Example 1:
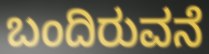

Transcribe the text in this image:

ಬಂದಿರುವನೆ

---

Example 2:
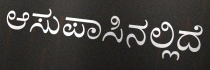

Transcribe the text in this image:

ಆಸುಪಾಸಿನಲ್ಲಿದೆ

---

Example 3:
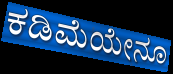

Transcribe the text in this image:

ಕಡಿಮೆಯೇನೂ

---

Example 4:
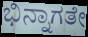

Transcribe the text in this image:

ಭಿನ್ನಾಗತೇ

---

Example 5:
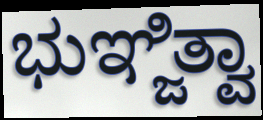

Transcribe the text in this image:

ಭುಞ್ಜಿತ್ವಾ